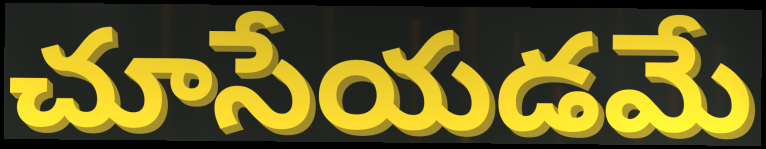
చూసేయడమే